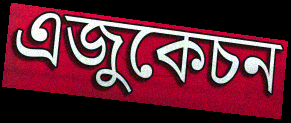
এজুকেচন